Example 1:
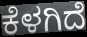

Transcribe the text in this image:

ಕೆಳಗಿದೆ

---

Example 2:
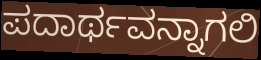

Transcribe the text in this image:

ಪದಾರ್ಥವನ್ನಾಗಲಿ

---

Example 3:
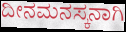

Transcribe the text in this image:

ದೀನಮನಸ್ಕನಾಗಿ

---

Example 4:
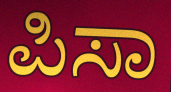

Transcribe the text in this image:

ಪಿಸಾ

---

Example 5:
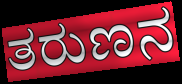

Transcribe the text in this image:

ತರುಣನ